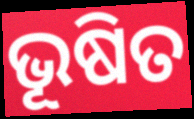
ଭୂଷିତ